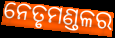
ନେତୃମଣ୍ଡଳର